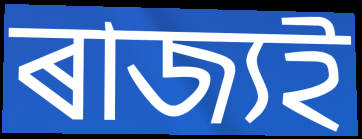
ৰাজ্যই